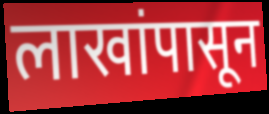
लाखांपासून